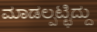
ಮಾಡಲ್ಪಟ್ಟಿದ್ದು